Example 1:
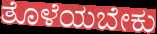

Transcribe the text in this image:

ತೊಳೆಯಬೇಕು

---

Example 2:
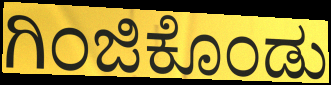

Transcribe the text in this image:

ಗಿಂಜಿಕೊಂಡು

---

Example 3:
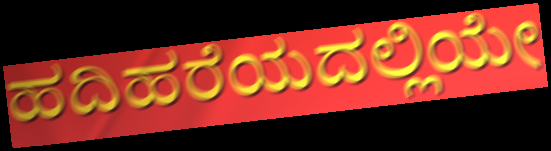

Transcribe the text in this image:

ಹದಿಹರೆಯದಲ್ಲಿಯೇ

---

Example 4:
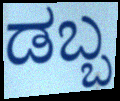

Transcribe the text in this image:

ಡಬ್ಬ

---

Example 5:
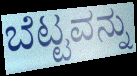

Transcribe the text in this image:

ಬೆಟ್ಟವನ್ನು